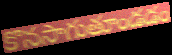
కొనసాగుతూండడం